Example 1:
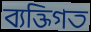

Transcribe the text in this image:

ব্যক্তিগত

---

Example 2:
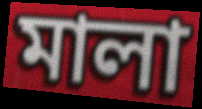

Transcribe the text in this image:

মালা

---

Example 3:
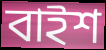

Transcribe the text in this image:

বাইশ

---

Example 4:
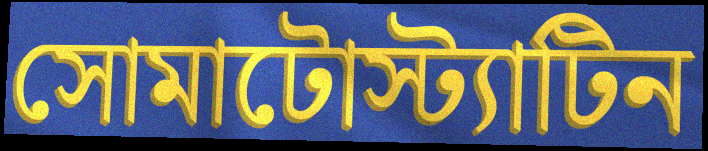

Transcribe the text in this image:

সোমাটোস্ট্যাটিন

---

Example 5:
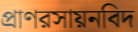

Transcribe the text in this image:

প্রাণরসায়নবিদ